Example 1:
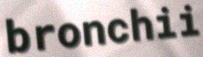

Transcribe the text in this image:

bronchii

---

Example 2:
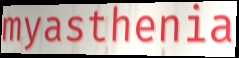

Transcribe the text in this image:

myasthenia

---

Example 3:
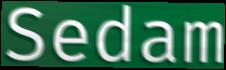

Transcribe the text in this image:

Sedam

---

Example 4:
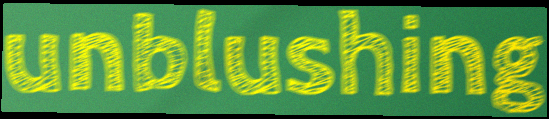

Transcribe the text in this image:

unblushing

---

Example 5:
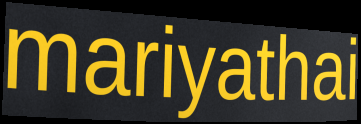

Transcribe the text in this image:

mariyathai